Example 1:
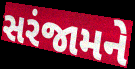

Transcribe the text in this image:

સરંજામને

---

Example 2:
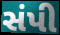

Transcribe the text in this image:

સંપી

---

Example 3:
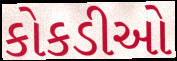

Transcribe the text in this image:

કોકડીઓ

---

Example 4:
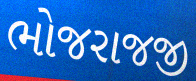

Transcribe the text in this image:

ભોજરાજજી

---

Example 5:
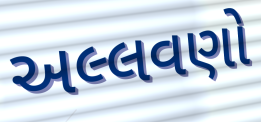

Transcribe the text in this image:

અલ્લવણો